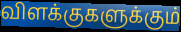
விளக்குகளுக்கும்